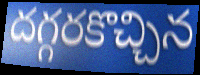
దగ్గరకొచ్చిన